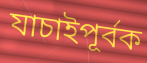
যাচাইপূর্বক